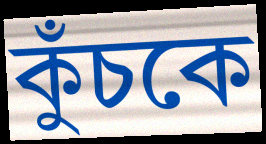
কুঁচকে